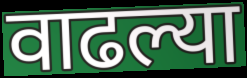
वाढल्या